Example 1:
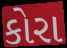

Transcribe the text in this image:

કોરા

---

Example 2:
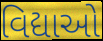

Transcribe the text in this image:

વિદ્યાઓ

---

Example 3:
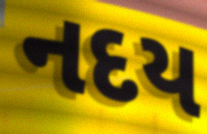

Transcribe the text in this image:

નદય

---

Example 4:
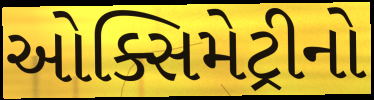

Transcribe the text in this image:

ઓક્સિમેટ્રીનો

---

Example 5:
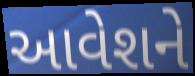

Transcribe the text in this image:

આવેશને